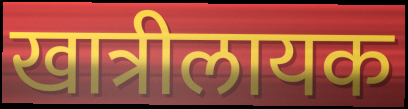
खात्रीलायक